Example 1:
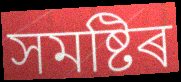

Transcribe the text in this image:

সমষ্টিৰ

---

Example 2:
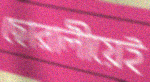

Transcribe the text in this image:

ছোৱালীয়েই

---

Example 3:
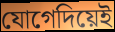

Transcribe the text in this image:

যোগেদিয়েই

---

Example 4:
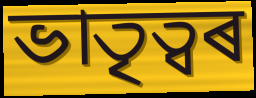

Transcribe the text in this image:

ভাতৃত্বৰ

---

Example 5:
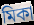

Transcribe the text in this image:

মিকা